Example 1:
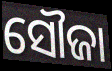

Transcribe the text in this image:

ସୌଜା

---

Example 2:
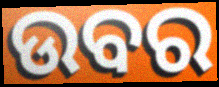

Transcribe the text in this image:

ଉବର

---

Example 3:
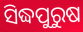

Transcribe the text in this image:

ସିଦ୍ଧପୁରୁଷ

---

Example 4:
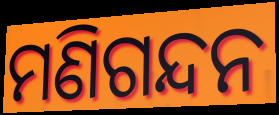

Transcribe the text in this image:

ମଣିଗନ୍ଦନ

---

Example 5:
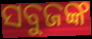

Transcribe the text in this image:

ସବୁଜଙ୍କ